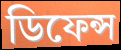
ডিফেন্স